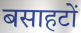
बसाहटों